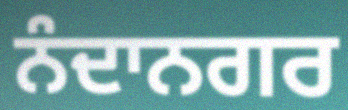
ਨੰਦਾਨਗਰ